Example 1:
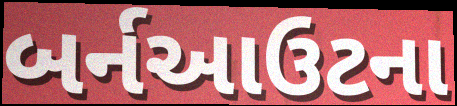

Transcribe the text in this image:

બર્નઆઉટના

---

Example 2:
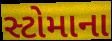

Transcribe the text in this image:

સ્ટોમાના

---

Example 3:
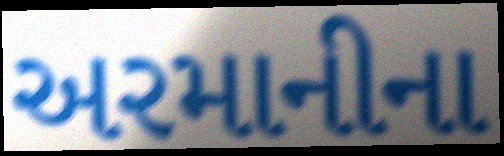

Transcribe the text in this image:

અરમાનીના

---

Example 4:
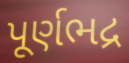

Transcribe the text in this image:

પૂર્ણભદ્ર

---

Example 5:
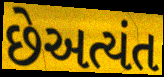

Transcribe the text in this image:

છેઅત્યંત